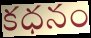
కధనం